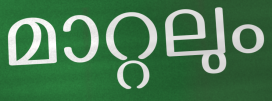
മാറ്റലും